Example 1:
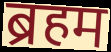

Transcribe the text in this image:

ब्रहम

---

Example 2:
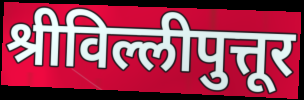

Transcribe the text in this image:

श्रीविल्लीपुत्तूर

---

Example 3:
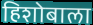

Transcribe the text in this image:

हिशोबाला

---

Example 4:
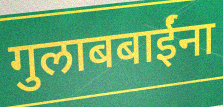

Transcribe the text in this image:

गुलाबबाईंना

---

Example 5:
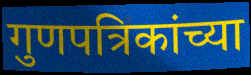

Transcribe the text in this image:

गुणपत्रिकांच्या